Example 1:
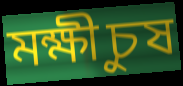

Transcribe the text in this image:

মক্ষীচুষ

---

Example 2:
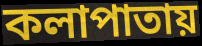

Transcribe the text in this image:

কলাপাতায়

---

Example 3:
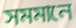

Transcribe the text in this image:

সমমানে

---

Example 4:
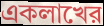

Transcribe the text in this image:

একলাখের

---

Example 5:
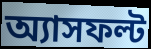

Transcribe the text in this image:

অ্যাসফল্ট